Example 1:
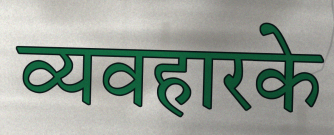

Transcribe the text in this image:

व्यवहारके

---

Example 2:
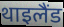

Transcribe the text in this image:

थाइलैंड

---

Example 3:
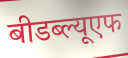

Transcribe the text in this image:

बीडब्ल्यूएफ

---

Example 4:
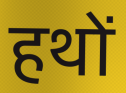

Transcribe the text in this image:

हथों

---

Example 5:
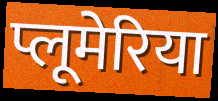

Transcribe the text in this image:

प्लूमेरिया